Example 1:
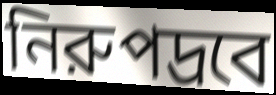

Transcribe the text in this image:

নিরুপদ্রবে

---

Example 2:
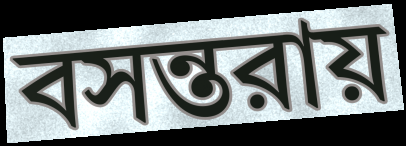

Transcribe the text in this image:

বসন্তরায়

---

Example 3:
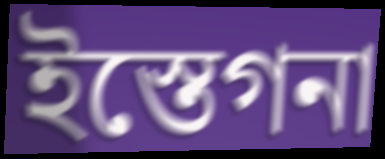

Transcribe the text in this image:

ইস্তেগনা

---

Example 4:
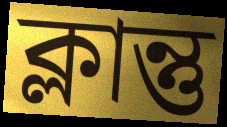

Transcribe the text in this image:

ক্লান্তু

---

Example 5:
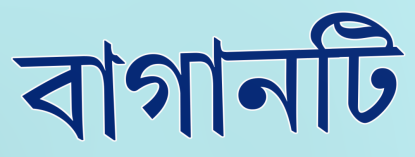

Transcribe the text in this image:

বাগানটি